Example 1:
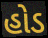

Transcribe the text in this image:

હોડ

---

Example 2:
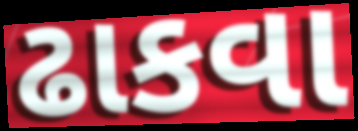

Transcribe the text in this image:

ઢાકવા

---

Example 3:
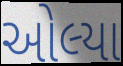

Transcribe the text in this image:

ઓલ્યા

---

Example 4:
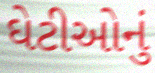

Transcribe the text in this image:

ઘેટીઓનું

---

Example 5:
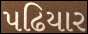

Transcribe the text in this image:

પઢિયાર